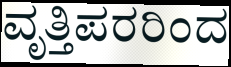
ವೃತ್ತಿಪರರಿಂದ